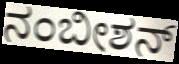
ನಂಬೀಶನ್